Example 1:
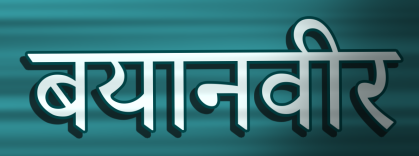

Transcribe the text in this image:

बयानवीर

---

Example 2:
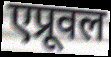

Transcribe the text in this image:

एप्रूवल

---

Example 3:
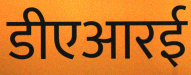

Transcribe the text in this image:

डीएआरई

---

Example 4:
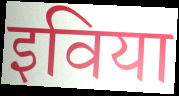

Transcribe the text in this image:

इविया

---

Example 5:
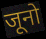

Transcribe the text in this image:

जूनो